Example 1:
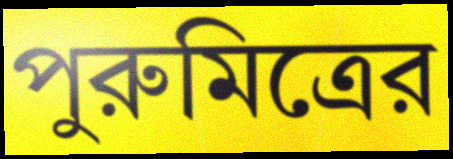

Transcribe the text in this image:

পুরুমিত্রের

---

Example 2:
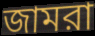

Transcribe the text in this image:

জামরা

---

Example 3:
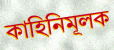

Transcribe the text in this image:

কাহিনিমূলক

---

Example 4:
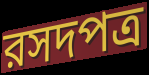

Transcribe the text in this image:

রসদপত্র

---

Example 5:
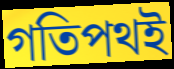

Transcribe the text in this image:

গতিপথই